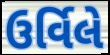
ઉર્વિલે